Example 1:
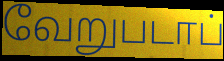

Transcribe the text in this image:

வேறுபடாப்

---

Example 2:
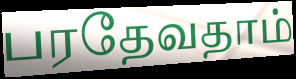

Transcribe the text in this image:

பரதேவதாம்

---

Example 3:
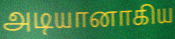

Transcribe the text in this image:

அடியானாகிய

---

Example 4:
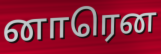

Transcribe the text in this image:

னாரென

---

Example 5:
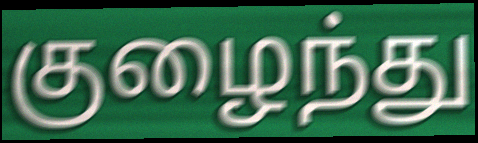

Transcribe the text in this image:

குழைந்து